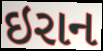
ઇરાન